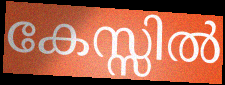
കേസ്സിൽ